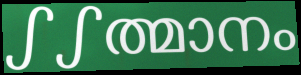
ഽഽത്മാനം